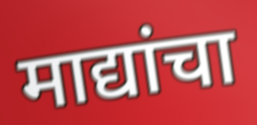
माद्यांचा